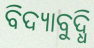
ବିଦ୍ୟାବୁଦ୍ଧି